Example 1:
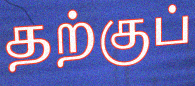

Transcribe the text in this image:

தற்குப்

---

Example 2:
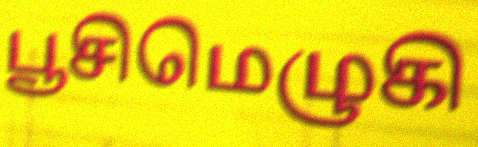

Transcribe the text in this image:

பூசிமெழுகி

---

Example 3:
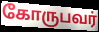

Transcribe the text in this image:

கோருபவர்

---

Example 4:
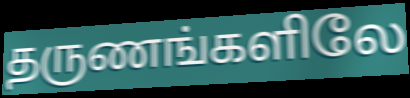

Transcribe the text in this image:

தருணங்களிலே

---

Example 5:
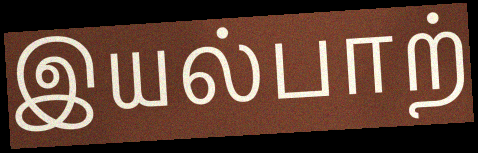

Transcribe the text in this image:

இயல்பாற்